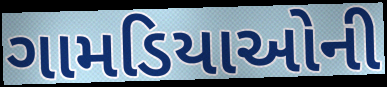
ગામડિયાઓની